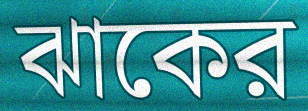
ঝাকের